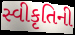
સ્વીકૃતિની